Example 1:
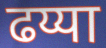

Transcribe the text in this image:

ढय्या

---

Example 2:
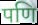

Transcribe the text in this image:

पणि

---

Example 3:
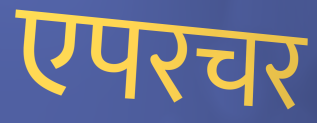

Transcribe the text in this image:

एपरचर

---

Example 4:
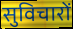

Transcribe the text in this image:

सुविचारों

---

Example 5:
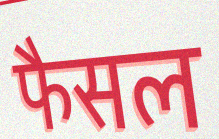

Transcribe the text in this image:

फैसल